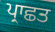
ਪ੍ਰਾਛਤ